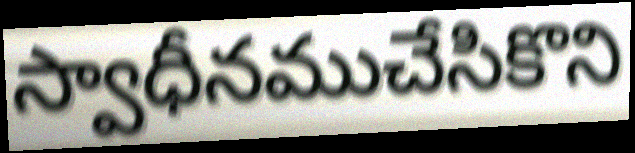
స్వాధీనముచేసికొని